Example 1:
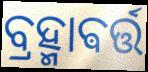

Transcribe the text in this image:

ବ୍ରହ୍ମାଵର୍ତ୍ତ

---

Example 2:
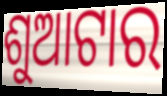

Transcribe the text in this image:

ଶୁଆଟାର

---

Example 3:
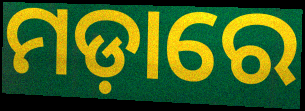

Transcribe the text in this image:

ମଡ଼ାରେ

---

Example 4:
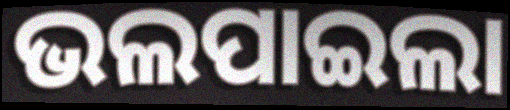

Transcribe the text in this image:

ଭଲପାଇଲା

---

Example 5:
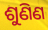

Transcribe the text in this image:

ଶୁଣିଣ